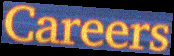
Careers